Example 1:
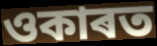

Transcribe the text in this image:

ওকাৰত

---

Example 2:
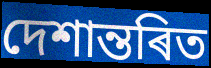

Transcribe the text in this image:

দেশান্তৰিত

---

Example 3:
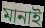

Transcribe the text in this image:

মানাই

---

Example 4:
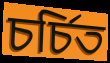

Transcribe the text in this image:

চৰ্চিত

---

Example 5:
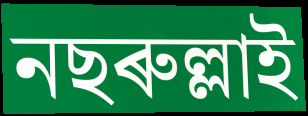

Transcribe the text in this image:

নছৰুল্লাই